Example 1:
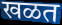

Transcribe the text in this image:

खळत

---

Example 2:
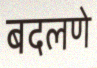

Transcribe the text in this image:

बदलणे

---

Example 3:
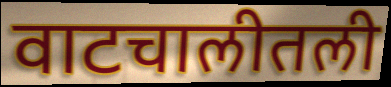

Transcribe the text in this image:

वाटचालीतली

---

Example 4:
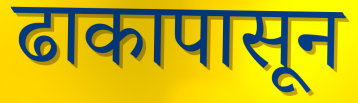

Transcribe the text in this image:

ढाकापासून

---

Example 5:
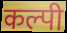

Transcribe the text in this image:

कल्पी